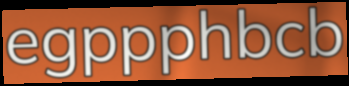
egppphbcb